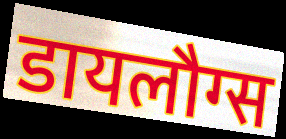
डायलौग्स